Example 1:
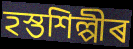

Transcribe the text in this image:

হস্তশিল্পীৰ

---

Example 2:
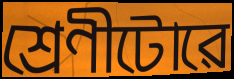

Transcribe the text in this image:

শ্ৰেণীটোৱে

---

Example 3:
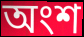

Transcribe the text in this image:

অংশ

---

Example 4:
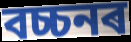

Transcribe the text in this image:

বচ্চনৰ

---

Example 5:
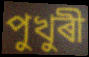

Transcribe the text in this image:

পুখুৰী